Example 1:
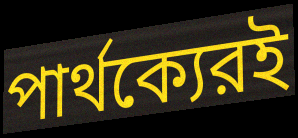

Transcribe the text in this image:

পার্থক্যেরই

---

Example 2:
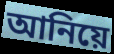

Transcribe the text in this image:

আনিয়ে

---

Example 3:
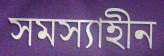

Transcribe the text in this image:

সমস্যাহীন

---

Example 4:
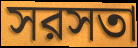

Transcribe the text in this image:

সরসতা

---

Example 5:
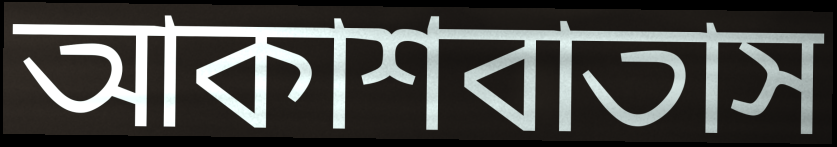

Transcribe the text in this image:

আকাশবাতাস